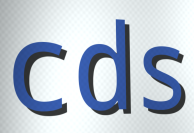
cds